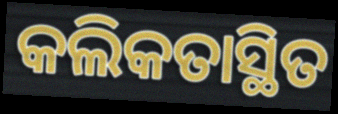
କଲିକତାସ୍ଥିତ